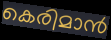
കെരിമാൻ